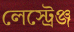
লেস্ট্রেঞ্জ